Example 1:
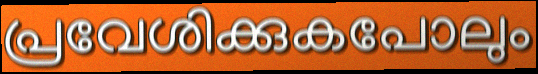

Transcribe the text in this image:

പ്രവേശിക്കുകപോലും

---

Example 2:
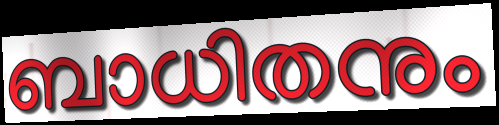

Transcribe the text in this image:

ബാധിതനും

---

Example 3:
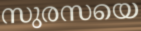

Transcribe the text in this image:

സുരസയെ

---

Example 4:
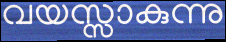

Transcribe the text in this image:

വയസ്സാകുന്നു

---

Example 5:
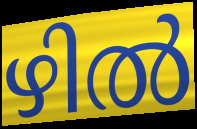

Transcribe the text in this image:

ഴിൽ